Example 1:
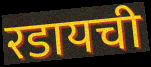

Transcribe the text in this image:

रडायची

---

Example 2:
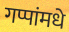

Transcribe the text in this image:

गप्पांमधे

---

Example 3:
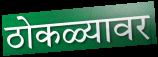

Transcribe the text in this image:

ठोकळ्यावर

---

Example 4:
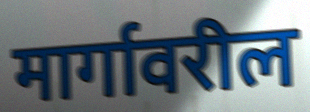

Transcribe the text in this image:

मार्गावरील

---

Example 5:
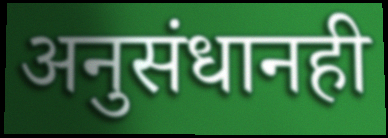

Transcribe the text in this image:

अनुसंधानही